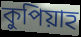
কুপিয়াহ